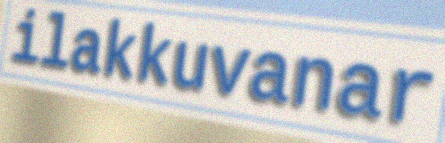
ilakkuvanar